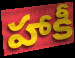
హాకీ